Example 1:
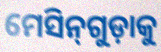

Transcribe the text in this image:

ମେସିନ୍‌ଗୁଡ଼ାକୁ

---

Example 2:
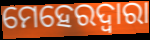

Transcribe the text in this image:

ମେହେରଦ୍ୱାରା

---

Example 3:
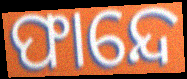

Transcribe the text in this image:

ଫାନ୍ଦେ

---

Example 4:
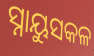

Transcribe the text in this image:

ସ୍ନାୟୁସକଳ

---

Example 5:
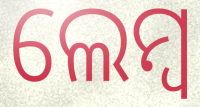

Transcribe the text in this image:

ଲେମ୍ବ